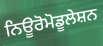
ਨਿਊਰੋਮੋਡੂਲੇਸ਼ਨ